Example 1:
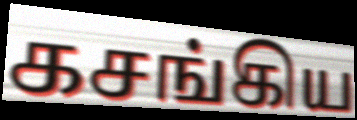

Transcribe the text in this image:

கசங்கிய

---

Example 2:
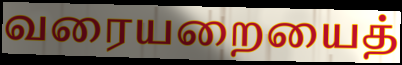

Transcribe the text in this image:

வரையறையைத்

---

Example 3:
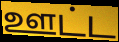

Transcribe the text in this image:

ஊட்ட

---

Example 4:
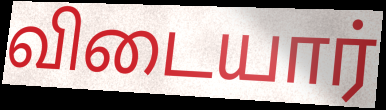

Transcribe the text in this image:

விடையார்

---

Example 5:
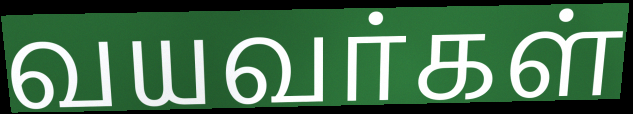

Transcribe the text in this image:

வயவர்கள்